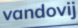
vandovij